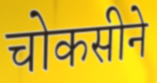
चोकसीने